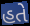
હતે